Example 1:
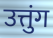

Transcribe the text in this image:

उत्तुंग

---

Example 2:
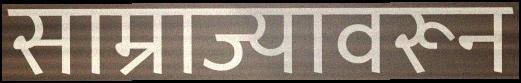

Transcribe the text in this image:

साम्राज्यावरून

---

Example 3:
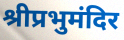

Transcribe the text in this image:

श्रीप्रभुमंदिर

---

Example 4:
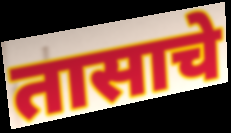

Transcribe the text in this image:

तासाचे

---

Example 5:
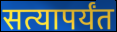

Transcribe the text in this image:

सत्यापर्यंत